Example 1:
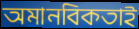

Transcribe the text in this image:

অমানবিকতাই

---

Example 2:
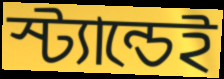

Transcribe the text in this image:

স্ট্যান্ডেই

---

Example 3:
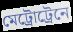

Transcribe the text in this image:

মেট্রোট্রেনে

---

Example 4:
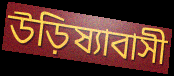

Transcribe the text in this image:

উড়িষ্যাবাসী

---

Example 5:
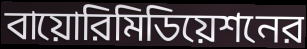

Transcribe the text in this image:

বায়োরিমিডিয়েশনের